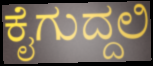
ಕೈಗುದ್ದಲಿ